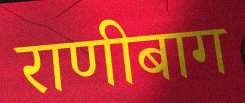
राणीबाग